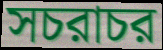
সচরাচর